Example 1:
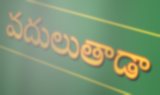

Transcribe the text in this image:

వదులుతాడా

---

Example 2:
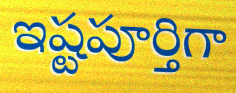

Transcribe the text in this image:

ఇష్టపూర్తిగా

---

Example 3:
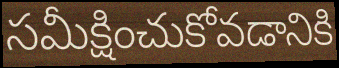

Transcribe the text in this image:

సమీక్షించుకోవడానికి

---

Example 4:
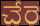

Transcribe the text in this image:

చేరె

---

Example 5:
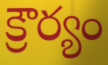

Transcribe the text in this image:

క్రౌర్యం